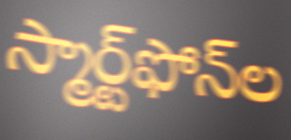
స్మార్ట్‌ఫోన్‌ల